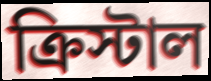
ক্রিস্টাল